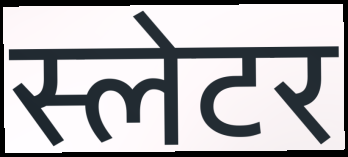
स्लेटर